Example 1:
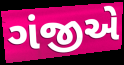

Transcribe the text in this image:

ગંજીએ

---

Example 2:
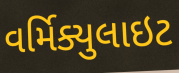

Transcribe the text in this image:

વર્મિક્યુલાઇટ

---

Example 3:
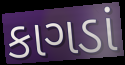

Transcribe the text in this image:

કાગડાં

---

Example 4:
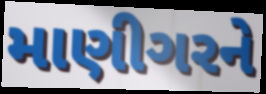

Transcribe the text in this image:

માણીગરને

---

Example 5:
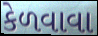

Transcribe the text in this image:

કેળવાવા